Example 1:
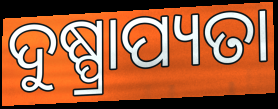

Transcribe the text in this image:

ଦୁଷ୍ପ୍ରାପ୍ୟତା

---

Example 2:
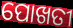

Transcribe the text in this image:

ପୋଖତୀ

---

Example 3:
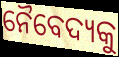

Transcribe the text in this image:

ନୈବେଦ୍ୟକୁ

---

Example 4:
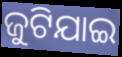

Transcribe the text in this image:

ଜୁଟିଯାଇ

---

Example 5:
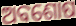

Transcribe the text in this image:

ଅବଶୋଷ